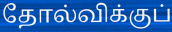
தோல்விக்குப்